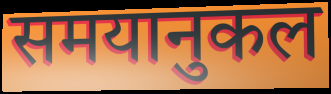
समयानुकल